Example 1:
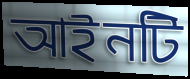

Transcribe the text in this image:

আইনটি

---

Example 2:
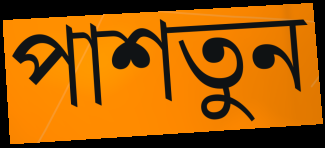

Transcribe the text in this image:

পাশতুন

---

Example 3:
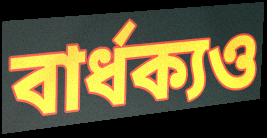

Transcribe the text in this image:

বার্ধক্যও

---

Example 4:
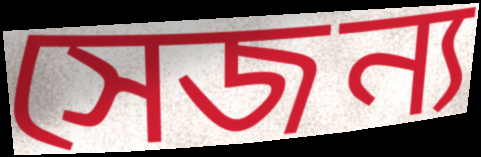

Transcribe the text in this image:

সেজন্য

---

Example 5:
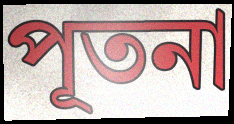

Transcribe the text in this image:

পূতনা